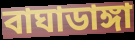
বাঘাডাঙ্গা